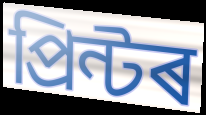
প্ৰিন্টৰ